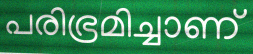
പരിഭ്രമിച്ചാണ്